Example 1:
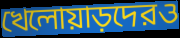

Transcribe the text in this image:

খেলোয়াড়দেরও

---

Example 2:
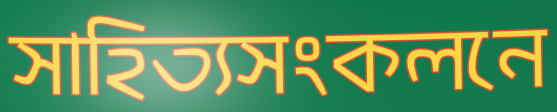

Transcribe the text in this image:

সাহিত্যসংকলনে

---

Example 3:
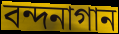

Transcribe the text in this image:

বন্দনাগান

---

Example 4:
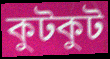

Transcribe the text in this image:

কুটকুট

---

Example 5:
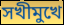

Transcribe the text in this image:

সখীমুখে